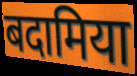
बदामिया